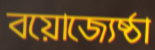
বয়োজ্যেষ্ঠা